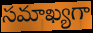
సమాఖ్యగా